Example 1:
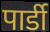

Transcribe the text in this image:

पार्डी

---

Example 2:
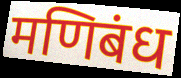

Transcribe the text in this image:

मणिबंध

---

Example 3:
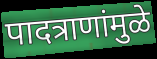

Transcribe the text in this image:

पादत्राणांमुळे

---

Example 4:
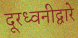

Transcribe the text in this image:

दूरध्वनीद्वारे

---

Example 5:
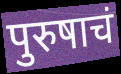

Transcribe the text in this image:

पुरुषाचं